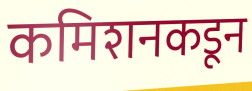
कमिशनकडून